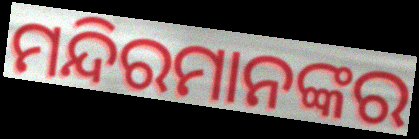
ମନ୍ଦିରମାନଙ୍କର